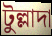
টুল্লাদা